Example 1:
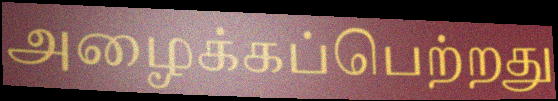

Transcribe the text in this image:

அழைக்கப்பெற்றது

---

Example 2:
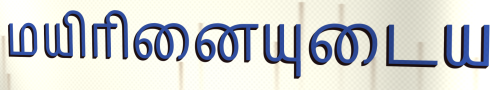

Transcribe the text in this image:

மயிரினையுடைய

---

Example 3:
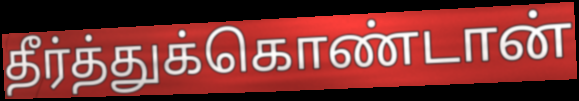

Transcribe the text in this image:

தீர்த்துக்கொண்டான்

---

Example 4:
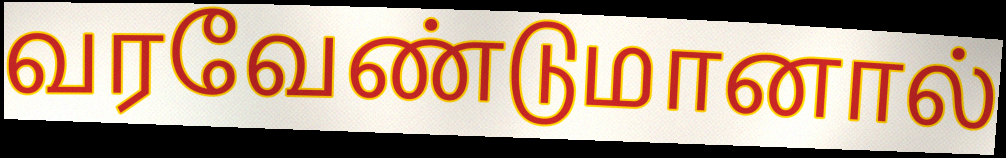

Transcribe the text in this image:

வரவேண்டுமானால்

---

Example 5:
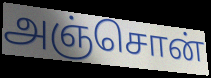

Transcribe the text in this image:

அஞ்சொன்